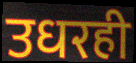
उधरही